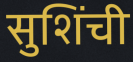
सुशिंची